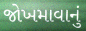
જોખમાવાનું